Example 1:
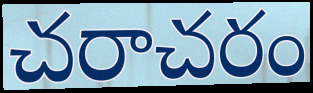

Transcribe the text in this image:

చరాచరం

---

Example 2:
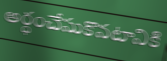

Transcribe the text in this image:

అర్ధంచేసుకొనటానికి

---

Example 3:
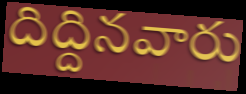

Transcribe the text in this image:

దిద్దినవారు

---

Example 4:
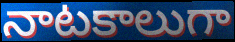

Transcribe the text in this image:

నాటకాలుగా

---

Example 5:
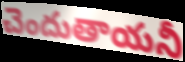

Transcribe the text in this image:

చెందుతాయనీ